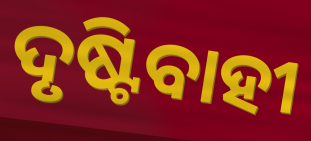
ଦୃଷ୍ଟିବାହୀ